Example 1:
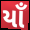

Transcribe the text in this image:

યાઁ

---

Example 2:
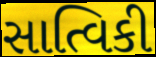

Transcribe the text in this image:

સાત્વિકી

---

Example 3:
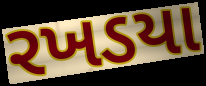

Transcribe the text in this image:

રખડયા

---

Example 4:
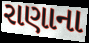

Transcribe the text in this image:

રાણાના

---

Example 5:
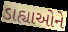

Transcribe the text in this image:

ડાહ્યાઓને